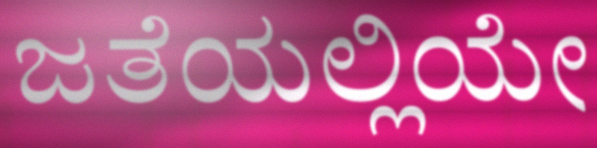
ಜತೆಯಲ್ಲಿಯೇ